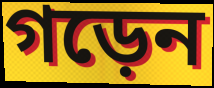
গড়েন